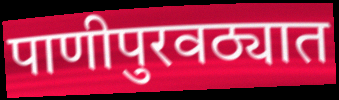
पाणीपुरवठ्यात